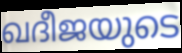
ഖദീജയുടെ